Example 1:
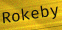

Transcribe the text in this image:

Rokeby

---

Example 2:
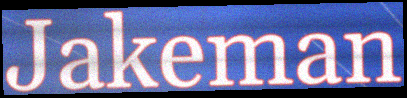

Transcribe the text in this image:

Jakeman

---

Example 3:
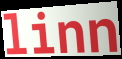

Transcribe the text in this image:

linn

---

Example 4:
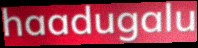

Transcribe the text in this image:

haadugalu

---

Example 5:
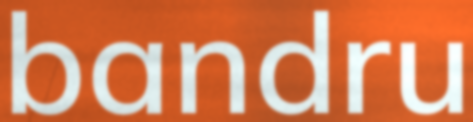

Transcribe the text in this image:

bandru